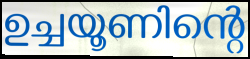
ഉച്ചയൂണിന്റെ